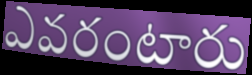
ఎవరంటారు